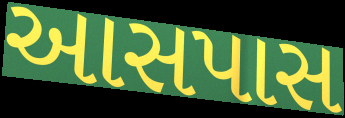
આસપાસ